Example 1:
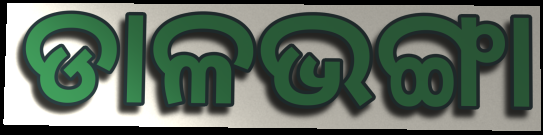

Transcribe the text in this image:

ଡାଳଭଙ୍ଗା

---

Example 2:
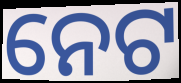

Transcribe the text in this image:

ନେଟ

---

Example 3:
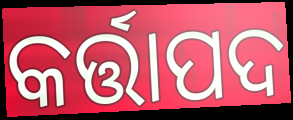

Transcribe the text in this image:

କର୍ତ୍ତାପଦ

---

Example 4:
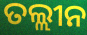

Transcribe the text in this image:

ତଲ୍ଲୀନ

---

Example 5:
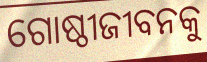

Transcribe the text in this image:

ଗୋଷ୍ଠୀଜୀବନକୁ